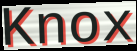
Knox